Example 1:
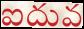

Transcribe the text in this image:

ఐదువ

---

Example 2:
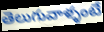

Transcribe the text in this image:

తెలుగువాళ్ళంటే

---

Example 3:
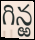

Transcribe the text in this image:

గిన్ఱ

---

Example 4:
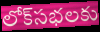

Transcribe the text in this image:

లోక్‌సభలకు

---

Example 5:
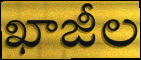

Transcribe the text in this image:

ఖాజీల